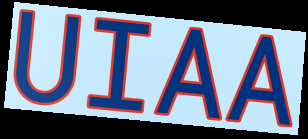
UIAA